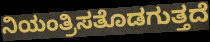
ನಿಯಂತ್ರಿಸತೊಡಗುತ್ತದೆ